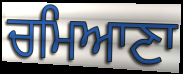
ਚਮਿਆਣਾ